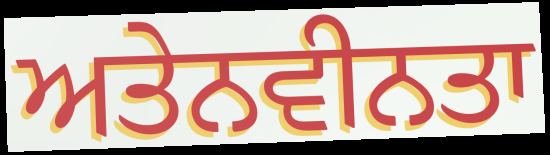
ਅਤੇਨਵੀਨਤਾ